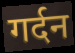
गर्दन